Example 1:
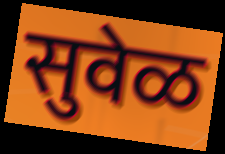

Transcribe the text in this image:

सुवेळ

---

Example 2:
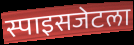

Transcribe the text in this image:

स्पाइसजेटला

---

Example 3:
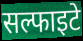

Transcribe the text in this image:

सल्फाइटे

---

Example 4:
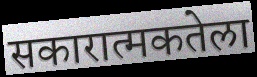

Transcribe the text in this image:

सकारात्मकतेला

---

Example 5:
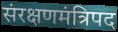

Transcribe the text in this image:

संरक्षणमंत्रिपद